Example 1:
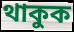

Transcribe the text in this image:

থাকুক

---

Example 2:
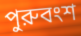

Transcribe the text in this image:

পুরুবংশ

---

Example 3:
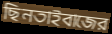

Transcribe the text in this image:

ছিনতাইবাজের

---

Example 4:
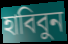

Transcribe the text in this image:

হাবিবুন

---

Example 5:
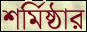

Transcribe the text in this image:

শর্মিষ্ঠার